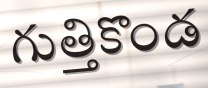
గుత్తికొండ